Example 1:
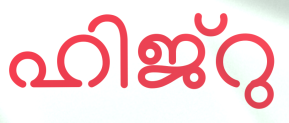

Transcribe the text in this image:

ഹിജ്റു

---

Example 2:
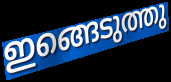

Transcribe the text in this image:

ഇങ്ങെടുത്തു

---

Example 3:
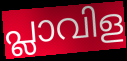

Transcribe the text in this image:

പ്ലാവിള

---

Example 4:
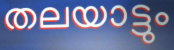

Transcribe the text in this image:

തലയാട്ടും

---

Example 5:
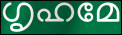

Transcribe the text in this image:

ഗൃഹമേ